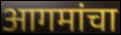
आगमांचा